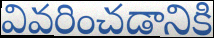
వివరించడానికి